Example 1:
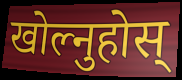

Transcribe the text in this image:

खोल्नुहोस्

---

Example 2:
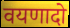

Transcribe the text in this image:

वयणादो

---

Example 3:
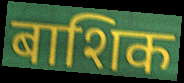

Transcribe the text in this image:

बाशिक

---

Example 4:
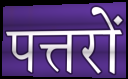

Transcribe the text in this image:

पत्तरों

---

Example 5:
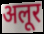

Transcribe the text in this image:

अलूर